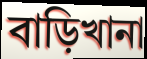
বাড়িখানা